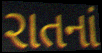
રાતનાં